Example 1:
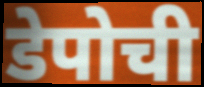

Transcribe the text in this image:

डेपोची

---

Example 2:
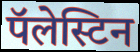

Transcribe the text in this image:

पॅलेस्टिन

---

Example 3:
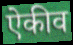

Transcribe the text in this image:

ऐकीव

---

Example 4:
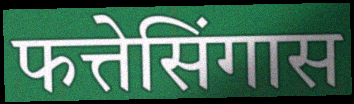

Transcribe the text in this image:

फत्तेसिंगास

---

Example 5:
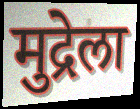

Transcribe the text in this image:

मुद्रेला